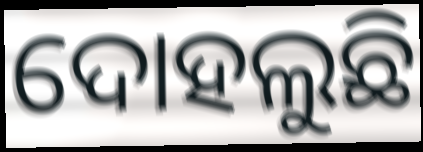
ଦୋହଲୁଛି